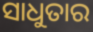
ସାଧୁତାର